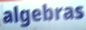
algebras